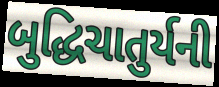
બુદ્ધિચાતુર્યની